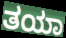
ತಯಾ